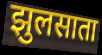
झुलसाता